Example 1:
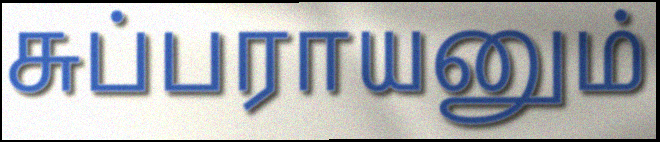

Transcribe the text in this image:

சுப்பராயனும்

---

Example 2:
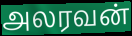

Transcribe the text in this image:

அலரவன்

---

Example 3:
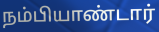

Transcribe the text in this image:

நம்பியாண்டார்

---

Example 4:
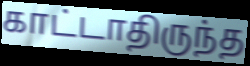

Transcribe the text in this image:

காட்டாதிருந்த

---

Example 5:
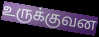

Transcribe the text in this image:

உருக்குவன